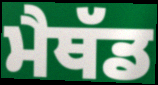
ਮੈਥੱਡ